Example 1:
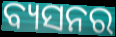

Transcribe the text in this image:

ବ୍ୟସନର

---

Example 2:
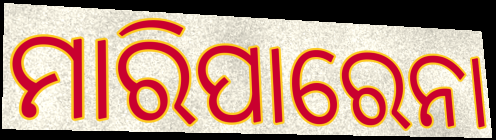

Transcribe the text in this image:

ମାରିପାରେନା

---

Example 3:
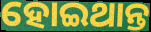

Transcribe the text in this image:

ହୋଇଥାନ୍ତ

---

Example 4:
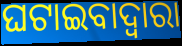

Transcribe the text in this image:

ଘଟାଇବାଦ୍ୱାରା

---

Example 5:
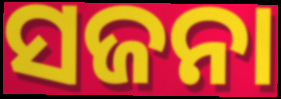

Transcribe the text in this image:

ସଜନା